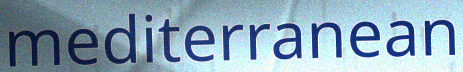
mediterranean